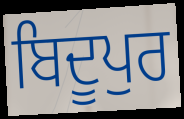
ਬਿਦੂਪੁਰ